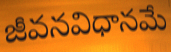
జీవనవిధానమే